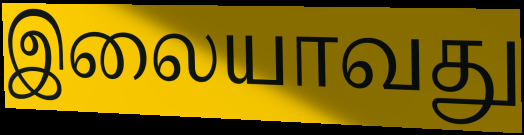
இலையாவது